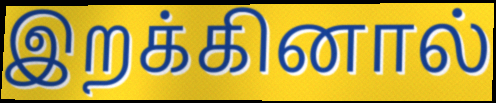
இறக்கினால்